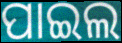
ପାଇଲ